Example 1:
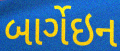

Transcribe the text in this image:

બાર્ગેઇન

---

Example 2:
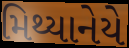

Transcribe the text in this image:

મિથ્યાનેયે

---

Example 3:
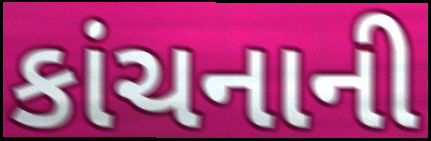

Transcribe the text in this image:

કાંચનાની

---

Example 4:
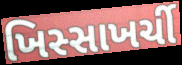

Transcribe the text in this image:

ખિસ્સાખર્ચી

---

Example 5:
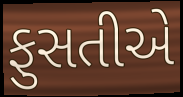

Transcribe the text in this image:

ફુસતીએ